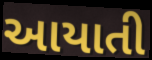
આયાતી